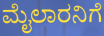
ಮೈಲಾರನಿಗೆ